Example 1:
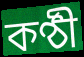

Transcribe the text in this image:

কণ্ঠী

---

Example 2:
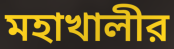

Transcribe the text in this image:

মহাখালীর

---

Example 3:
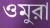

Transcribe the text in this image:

ওমুরা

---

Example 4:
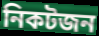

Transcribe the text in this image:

নিকটজন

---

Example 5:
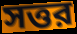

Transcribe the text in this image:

সত্তর